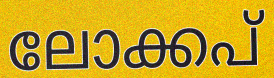
ലോക്കപ്